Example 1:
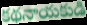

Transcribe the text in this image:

కథనాయకుడి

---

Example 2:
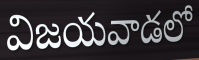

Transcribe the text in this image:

విజయవాడలో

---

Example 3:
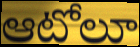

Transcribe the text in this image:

ఆటోలూ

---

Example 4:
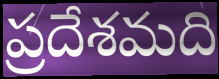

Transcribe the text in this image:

ప్రదేశమది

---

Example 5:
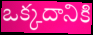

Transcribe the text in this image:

ఒక్కదానికి